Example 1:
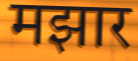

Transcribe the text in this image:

मझार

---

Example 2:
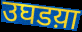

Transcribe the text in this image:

उघडय़ा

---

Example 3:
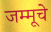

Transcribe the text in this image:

जम्मूचे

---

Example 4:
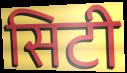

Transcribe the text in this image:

सिटी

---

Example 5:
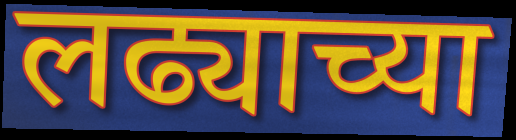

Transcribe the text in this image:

लढ्याच्या